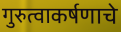
गुरुत्वाकर्षणाचे